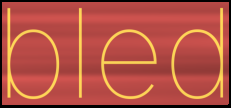
bled